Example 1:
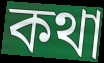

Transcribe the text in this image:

কথা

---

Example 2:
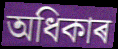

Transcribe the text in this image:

অধিকাৰ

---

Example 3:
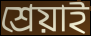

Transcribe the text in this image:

শ্ৰেয়াই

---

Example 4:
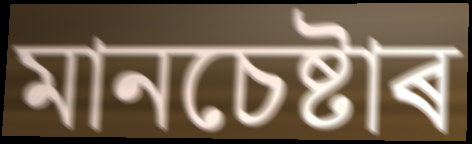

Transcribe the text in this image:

মানচেষ্টাৰ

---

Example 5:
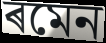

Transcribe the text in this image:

ৰমেন